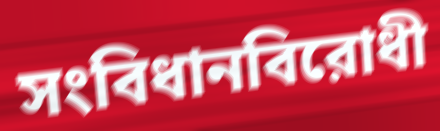
সংবিধানবিরোধী